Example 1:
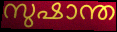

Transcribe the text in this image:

സുഷാന്ത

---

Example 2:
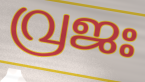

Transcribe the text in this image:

വ്രജഃ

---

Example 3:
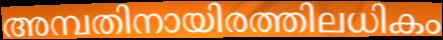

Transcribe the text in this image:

അമ്പതിനായിരത്തിലധികം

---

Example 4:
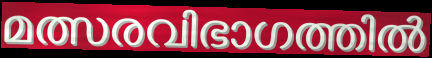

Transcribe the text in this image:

മത്സരവിഭാഗത്തിൽ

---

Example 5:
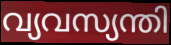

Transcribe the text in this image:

വ്യവസ്യന്തി